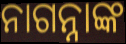
ନାଗନ୍ନାଙ୍କ